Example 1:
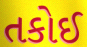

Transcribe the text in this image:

તકોઈ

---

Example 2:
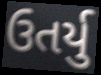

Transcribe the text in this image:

ઉતર્યુ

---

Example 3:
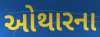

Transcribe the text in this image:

ઓથારના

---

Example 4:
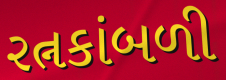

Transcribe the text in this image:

રત્નકાંબળી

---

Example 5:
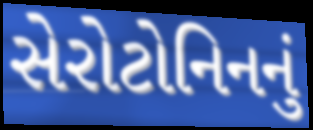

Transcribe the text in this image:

સેરોટોનિનનું